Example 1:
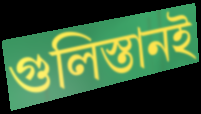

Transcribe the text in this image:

গুলিস্তানই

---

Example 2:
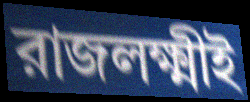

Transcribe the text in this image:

রাজলক্ষ্মীই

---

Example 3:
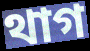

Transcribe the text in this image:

থাগ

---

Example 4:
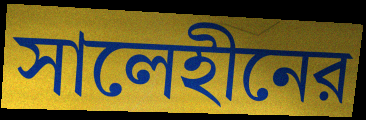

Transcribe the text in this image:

সালেহীনের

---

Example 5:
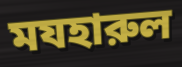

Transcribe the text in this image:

মযহারুল